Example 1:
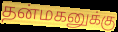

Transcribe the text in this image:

தன்மகனுக்கு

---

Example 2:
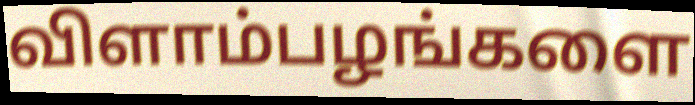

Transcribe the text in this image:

விளாம்பழங்களை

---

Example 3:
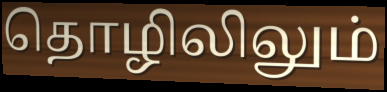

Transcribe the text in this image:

தொழிலிலும்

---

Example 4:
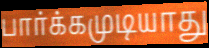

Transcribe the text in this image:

பார்க்கமுடியாது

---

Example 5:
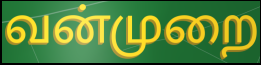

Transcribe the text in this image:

வன்முறை